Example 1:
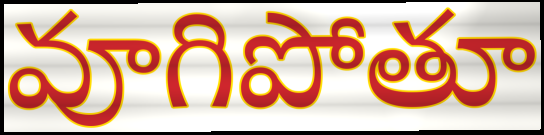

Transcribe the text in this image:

వూగిపోతూ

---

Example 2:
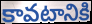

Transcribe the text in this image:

కావటానికి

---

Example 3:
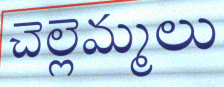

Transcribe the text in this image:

చెల్లెమ్మలు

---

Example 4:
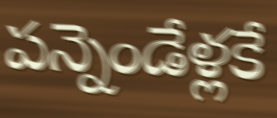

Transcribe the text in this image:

పన్నెండేళ్లకే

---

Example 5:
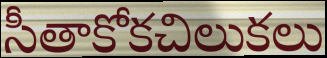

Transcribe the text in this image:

సీతాకోకచిలుకలు